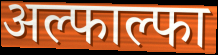
अल्फाल्फा